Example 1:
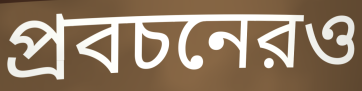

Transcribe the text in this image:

প্রবচনেরও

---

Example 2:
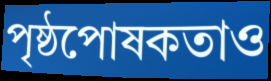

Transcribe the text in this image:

পৃষ্ঠপোষকতাও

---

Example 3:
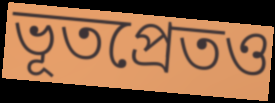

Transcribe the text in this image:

ভূতপ্রেতও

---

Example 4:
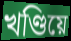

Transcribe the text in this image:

খণ্ডিয়ে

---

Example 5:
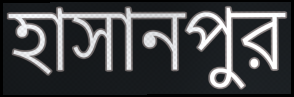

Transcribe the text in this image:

হাসানপুর